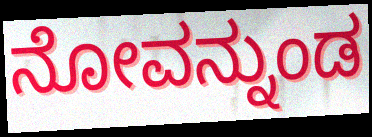
ನೋವನ್ನುಂಡ